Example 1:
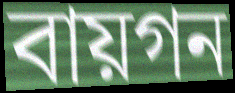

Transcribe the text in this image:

বায়গন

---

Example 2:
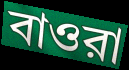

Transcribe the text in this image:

বাওরা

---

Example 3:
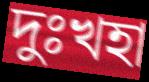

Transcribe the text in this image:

দুঃখহা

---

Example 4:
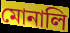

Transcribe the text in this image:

মোনালি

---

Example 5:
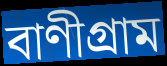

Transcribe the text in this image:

বাণীগ্রাম